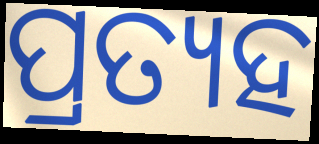
ପ୍ରତ୍ୟହ